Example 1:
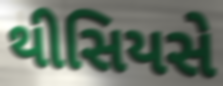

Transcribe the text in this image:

થીસિયસે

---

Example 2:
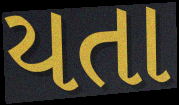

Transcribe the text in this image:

યતા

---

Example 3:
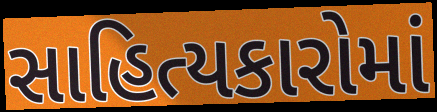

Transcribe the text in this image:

સાહિત્યકારોમાં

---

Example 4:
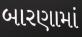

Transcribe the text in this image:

બારણામાં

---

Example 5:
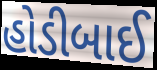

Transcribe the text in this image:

હોડીબાઈ